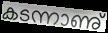
കടന്നാണു്